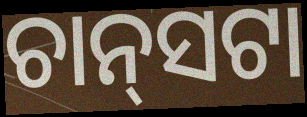
ଚାନ୍‌ସଟା